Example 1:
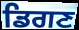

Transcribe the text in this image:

ਡਿਗਣ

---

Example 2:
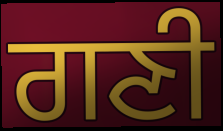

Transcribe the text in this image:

ਗਣੀ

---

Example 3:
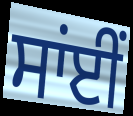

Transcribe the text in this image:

ਸਾਂਈਂ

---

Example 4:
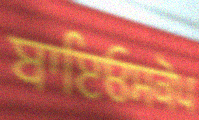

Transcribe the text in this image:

ਬਾਇਓਸਕੋਪ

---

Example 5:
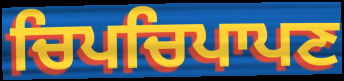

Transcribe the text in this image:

ਚਿਪਚਿਪਾਪਣ